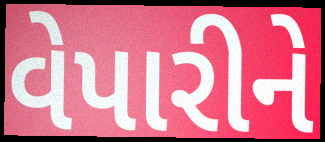
વેપારીને